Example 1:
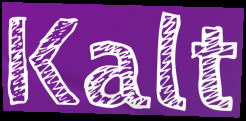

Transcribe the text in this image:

Kalt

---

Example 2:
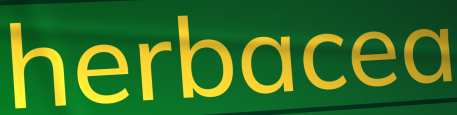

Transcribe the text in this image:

herbacea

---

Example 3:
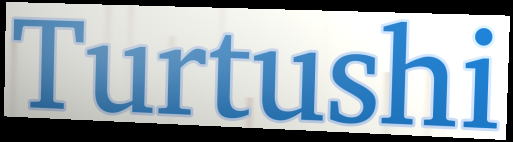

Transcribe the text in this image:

Turtushi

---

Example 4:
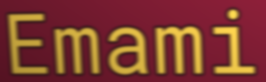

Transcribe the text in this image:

Emami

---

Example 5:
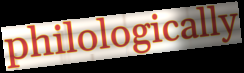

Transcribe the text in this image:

philologically